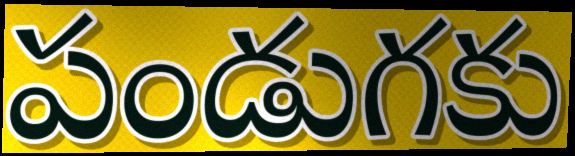
పండుగకు